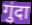
गुंदा